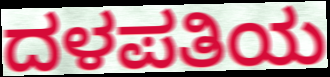
ದಳಪತಿಯ